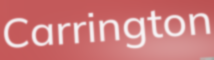
Carrington